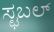
ಸ್ಟಬಲ್